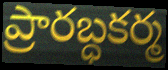
ప్రారబ్ధకర్మ